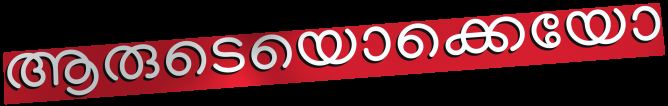
ആരുടെയൊക്കെയോ